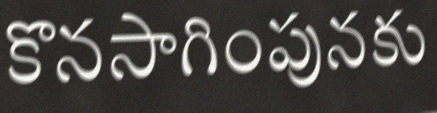
కొనసాగింపునకు